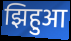
झिहुआ